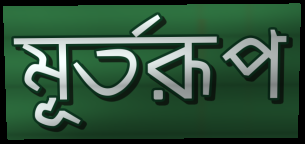
মূর্তরূপ